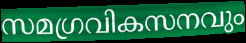
സമഗ്രവികസനവും